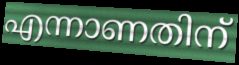
എന്നാണതിന്